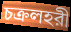
চক্রলহরী